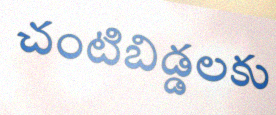
చంటిబిడ్డలకు